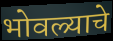
भोवल्याचे